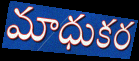
మాధుకర